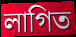
লাগিত